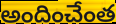
అందించేంత